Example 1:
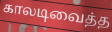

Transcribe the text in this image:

காலடிவைத்த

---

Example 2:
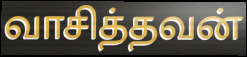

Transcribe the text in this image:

வாசித்தவன்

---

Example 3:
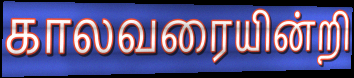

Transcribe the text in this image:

காலவரையின்றி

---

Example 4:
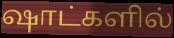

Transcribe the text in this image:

ஷாட்களில்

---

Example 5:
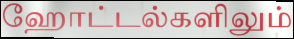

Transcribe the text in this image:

ஹோட்டல்களிலும்